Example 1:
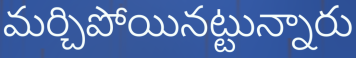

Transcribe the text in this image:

మర్చిపోయినట్టున్నారు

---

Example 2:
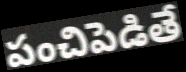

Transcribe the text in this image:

పంచిపెడితే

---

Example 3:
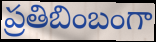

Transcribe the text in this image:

ప్రతిబింబంగా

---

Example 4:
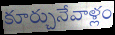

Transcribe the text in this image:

కూర్చునేవాళ్లం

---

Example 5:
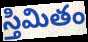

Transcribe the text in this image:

స్తిమితం